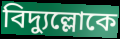
বিদ্যুল্লোকে